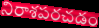
నిరాశపరచడం